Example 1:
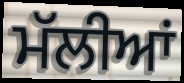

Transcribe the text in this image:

ਮੱਲੀਆਂ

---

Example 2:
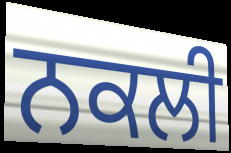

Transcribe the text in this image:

ਨਕਲੀ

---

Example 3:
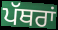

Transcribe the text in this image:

ਪੱਥਰਾਂ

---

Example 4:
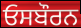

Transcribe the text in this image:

ਓਸਬੌਰਨ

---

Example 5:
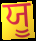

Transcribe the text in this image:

ਯੂ